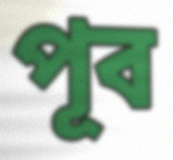
পূব